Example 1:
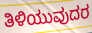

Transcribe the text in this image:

ತಿಳಿಯುವುದರ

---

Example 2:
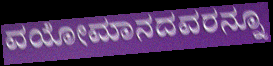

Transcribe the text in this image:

ವಯೋಮಾನದವರನ್ನೂ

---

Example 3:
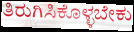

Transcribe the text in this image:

ತಿರುಗಿಸಿಕೊಳ್ಳಬೇಕು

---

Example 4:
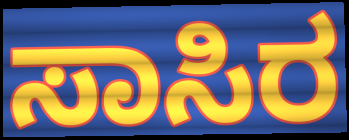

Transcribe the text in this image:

ಸಾಸಿರ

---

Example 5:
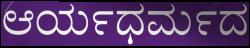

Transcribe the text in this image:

ಆರ್ಯಧರ್ಮದ